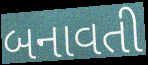
બનાવતી